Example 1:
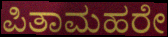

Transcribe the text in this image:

ಪಿತಾಮಹರೇ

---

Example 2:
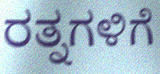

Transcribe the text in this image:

ರತ್ನಗಳಿಗೆ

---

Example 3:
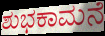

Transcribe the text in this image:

ಶುಭಕಾಮನೆ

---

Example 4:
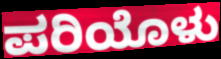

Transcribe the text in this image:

ಪರಿಯೊಳು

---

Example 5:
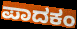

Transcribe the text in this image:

ಪಾದಕಂ